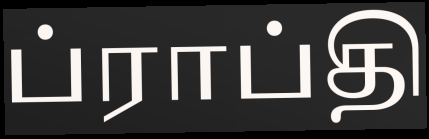
ப்ராப்தி